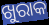
ଖୁରାକ